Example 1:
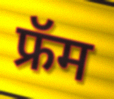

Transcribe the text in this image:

फ्रॅम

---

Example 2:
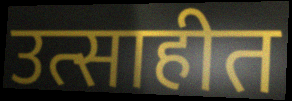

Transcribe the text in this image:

उत्साहीत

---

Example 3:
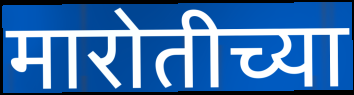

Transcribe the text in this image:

मारोतीच्या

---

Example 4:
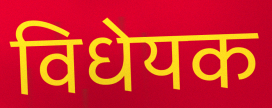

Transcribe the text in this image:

विधेयक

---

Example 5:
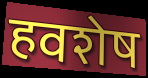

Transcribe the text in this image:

हवशेष